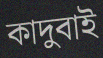
কাদুবাই